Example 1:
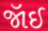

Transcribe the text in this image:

જૉઈ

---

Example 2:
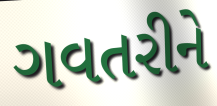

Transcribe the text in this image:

ગવતરીને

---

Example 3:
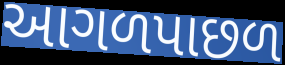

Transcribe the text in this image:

આગળપાછળ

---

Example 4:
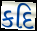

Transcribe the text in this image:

કદિ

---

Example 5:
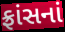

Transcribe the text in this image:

ફ્રાંસનાં